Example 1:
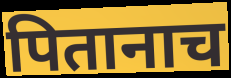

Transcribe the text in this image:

पितानाच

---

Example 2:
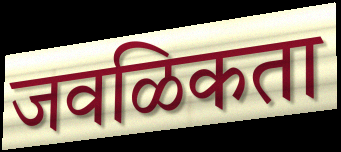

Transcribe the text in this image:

जवळिकता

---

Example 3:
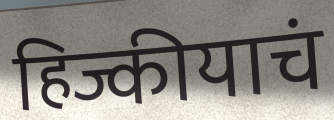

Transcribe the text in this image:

हिज्कीयाचं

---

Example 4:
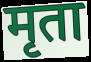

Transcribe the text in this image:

मृता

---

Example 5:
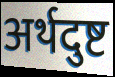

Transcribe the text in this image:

अर्थदुष्ट